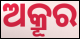
ଅକ୍ରୂର